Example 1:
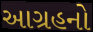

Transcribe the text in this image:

આગ્રહનો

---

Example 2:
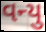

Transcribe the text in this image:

વન્યુ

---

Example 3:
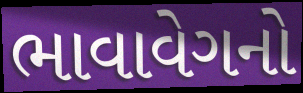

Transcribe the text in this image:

ભાવાવેગનો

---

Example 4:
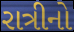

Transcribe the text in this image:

રાત્રીનો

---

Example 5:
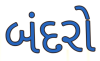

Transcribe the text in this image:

બંદરો